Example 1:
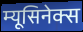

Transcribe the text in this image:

म्यूसिनेक्स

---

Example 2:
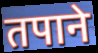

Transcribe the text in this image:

तपाने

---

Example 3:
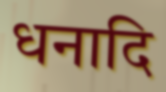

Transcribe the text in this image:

धनादि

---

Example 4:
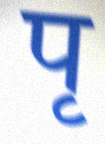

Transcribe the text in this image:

पृ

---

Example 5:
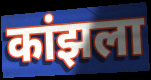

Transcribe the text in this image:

कांझला